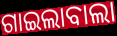
ଗାଇଲାବାଲା